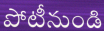
పోటీనుండి